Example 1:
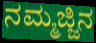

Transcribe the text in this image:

ನಮ್ಮಜ್ಜಿನ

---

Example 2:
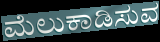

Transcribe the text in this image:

ಮೆಲುಕಾಡಿಸುವ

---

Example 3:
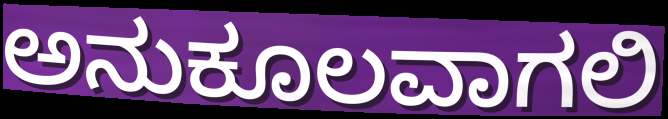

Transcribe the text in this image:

ಅನುಕೂಲವಾಗಲಿ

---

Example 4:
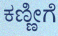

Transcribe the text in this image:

ಕಣ್ಣೀಗೆ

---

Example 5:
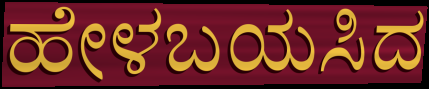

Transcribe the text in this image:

ಹೇಳಬಯಸಿದ